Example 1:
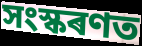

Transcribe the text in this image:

সংস্কৰণত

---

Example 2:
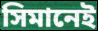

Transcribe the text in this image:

সিমানেই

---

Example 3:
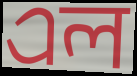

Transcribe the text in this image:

এল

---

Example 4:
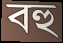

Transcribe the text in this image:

বহু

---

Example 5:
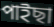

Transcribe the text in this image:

পাইছা